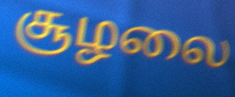
சூழலை